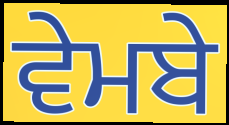
ਵੇਮਬੇ